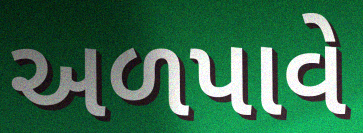
અળપાવે